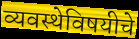
व्यवस्थेविषयीचे